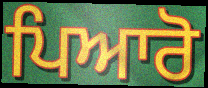
ਪਿਆਰੋ